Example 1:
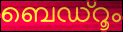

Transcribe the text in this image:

ബെഡ്റൂം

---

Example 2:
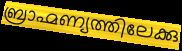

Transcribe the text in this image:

ബ്രാഹ്മണ്യത്തിലേക്കു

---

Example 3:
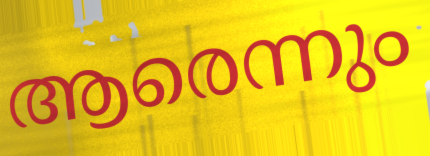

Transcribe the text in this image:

ആരെന്നും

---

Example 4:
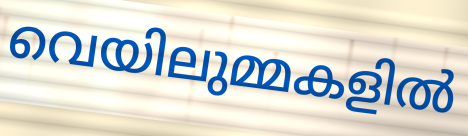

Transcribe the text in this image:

വെയിലുമ്മകളിൽ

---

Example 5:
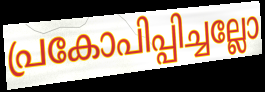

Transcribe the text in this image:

പ്രകോപിപ്പിച്ചല്ലോ